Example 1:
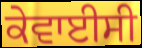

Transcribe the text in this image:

ਕੇਵਾਈਸੀ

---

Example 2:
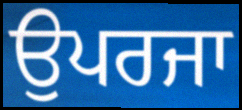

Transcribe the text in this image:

ਉਪਰਜਾ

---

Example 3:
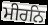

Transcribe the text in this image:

ਮੀਰਨਿ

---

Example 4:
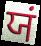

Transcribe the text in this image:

ਯਂ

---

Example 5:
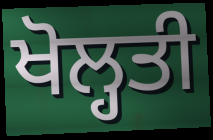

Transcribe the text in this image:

ਖੋਲ੍ਹਤੀ